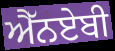
ਐੱਨਏਬੀ